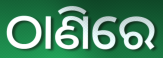
ଠାଣିରେ